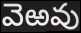
వెఱవు